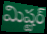
మిష్టర్